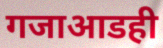
गजाआडही